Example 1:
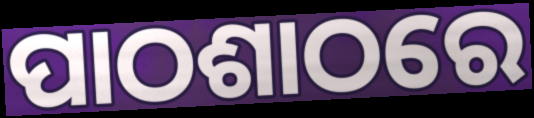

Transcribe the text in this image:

ପାଠଶାଠରେ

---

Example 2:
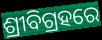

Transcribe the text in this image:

ଶ୍ରୀବିଗ୍ରହରେ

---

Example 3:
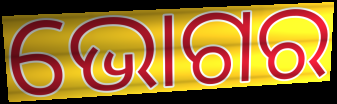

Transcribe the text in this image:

ଭୋଗର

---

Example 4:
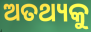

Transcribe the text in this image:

ଅତଥ୍ୟକୁ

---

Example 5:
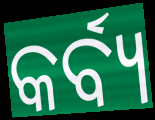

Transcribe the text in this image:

କର୍ବ୍ୟ